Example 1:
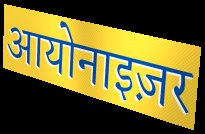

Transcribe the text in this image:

आयोनाइज़र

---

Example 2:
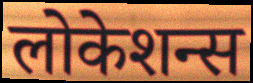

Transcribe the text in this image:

लोकेशन्स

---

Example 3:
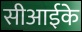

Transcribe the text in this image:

सीआईके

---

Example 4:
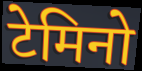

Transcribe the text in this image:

टेमिनो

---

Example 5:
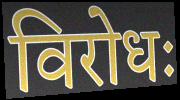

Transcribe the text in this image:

विरोधः